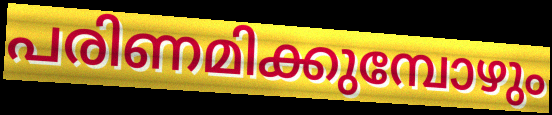
പരിണമിക്കുമ്പോഴും